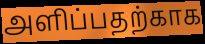
அளிப்பதற்காக